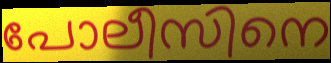
പോലീസിനെ